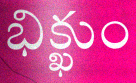
భిక్ఖుం